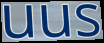
uus